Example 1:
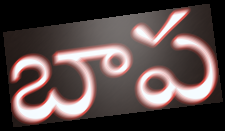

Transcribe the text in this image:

బాప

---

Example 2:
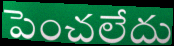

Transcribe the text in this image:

పెంచలేదు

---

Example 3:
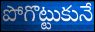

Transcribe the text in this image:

పోగొట్టుకునే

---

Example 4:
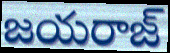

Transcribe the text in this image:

జయరాజ్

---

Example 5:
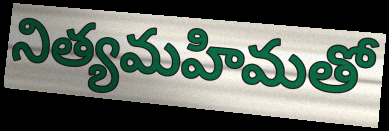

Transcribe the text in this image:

నిత్యమహిమతో